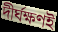
দীর্ঘক্ষণই